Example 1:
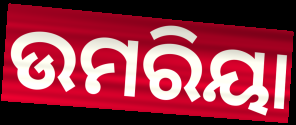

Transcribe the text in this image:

ଉମରିୟା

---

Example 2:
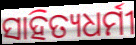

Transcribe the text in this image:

ସାହିତ୍ୟଧର୍ମୀ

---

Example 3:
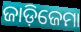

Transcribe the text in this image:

ଜାଡ଼ିଜେମା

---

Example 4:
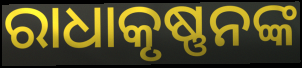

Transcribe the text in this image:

ରାଧାକୃଷ୍ଣନଙ୍କ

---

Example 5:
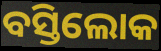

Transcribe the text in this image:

ବସ୍ତିଲୋକ